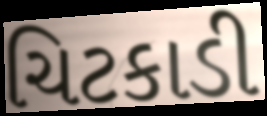
ચિટકાડી